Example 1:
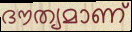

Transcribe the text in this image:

ദൗത്യമാണ്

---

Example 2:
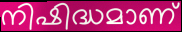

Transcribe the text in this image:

നിഷിദ്ധമാണ്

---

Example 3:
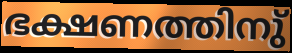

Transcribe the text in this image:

ഭക്ഷണത്തിനു്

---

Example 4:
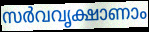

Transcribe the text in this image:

സർവവൃക്ഷാണാം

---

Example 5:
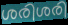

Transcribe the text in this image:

ശരിശരി